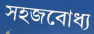
সহজবোধ্য